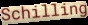
Schilling